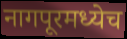
नागपूरमध्येच